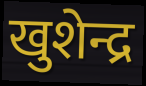
खुशेन्द्र